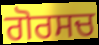
ਗੋਰਸਚ